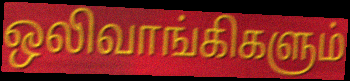
ஒலிவாங்கிகளும்